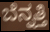
ಬೆನ್ನತ್ತಿ